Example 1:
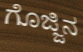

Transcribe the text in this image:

ಗೊಜ್ಜಿನ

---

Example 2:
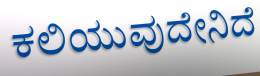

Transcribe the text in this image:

ಕಲಿಯುವುದೇನಿದೆ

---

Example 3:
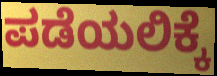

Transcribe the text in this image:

ಪಡೆಯಲಿಕ್ಕೆ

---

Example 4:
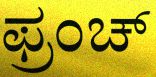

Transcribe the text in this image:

ಫ್ರಂಚ್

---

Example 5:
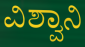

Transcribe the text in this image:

ವಿಶ್ವಾನಿ